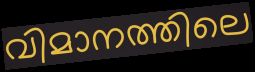
വിമാനത്തിലെ